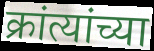
क्रांत्यांच्या